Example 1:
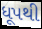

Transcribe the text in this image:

ધૂપથી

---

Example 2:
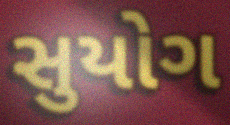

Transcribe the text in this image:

સુયોગ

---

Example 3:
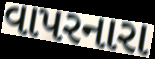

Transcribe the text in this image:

વાપરનારા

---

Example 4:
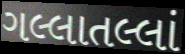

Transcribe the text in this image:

ગલ્લાતલ્લાં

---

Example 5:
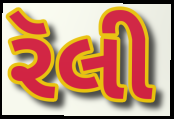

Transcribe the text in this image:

રૅલી